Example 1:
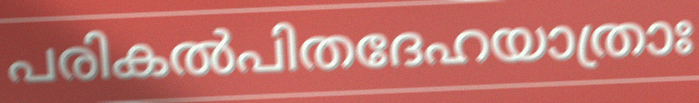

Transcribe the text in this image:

പരികൽപിതദേഹയാത്രാഃ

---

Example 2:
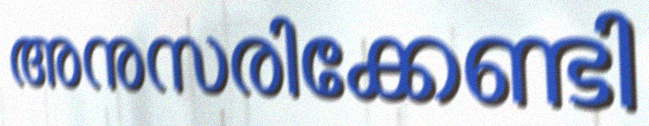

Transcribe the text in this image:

അനുസരിക്കേണ്ടി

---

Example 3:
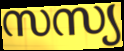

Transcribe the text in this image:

സസ്യ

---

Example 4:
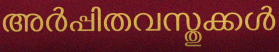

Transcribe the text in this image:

അർപ്പിതവസ്തുക്കൾ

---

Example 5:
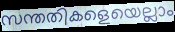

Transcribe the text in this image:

സന്തതികളെയെല്ലാം